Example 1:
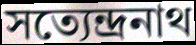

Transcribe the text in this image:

সত্যেন্দ্ৰনাথ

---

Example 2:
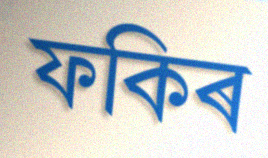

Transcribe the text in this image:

ফকিৰ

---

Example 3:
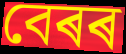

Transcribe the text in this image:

বেৰৰ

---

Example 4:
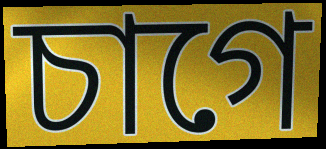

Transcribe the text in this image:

চাগে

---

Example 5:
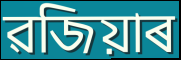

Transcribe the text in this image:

ৱজিয়াৰ